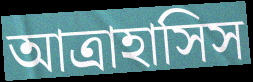
আত্রাহাসিস